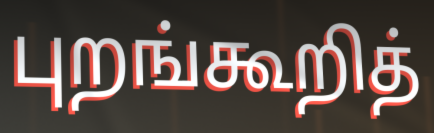
புறங்கூறித்